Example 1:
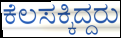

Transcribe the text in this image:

ಕೆಲಸಕ್ಕಿದ್ದರು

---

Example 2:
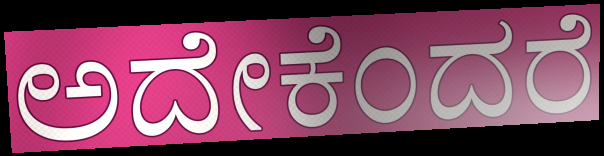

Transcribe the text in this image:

ಅದೇಕೆಂದರೆ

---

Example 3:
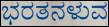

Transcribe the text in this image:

ಭರತನಳುವ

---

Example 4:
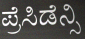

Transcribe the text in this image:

ಪ್ರೆಸಿಡೆನ್ಸಿ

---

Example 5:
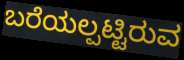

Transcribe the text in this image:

ಬರೆಯಲ್ಪಟ್ಟಿರುವ